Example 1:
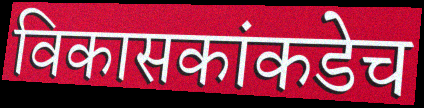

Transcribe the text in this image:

विकासकांकडेच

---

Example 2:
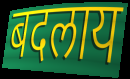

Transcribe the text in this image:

बदलाय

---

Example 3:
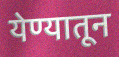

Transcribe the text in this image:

येण्यातून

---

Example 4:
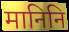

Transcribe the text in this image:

मानिनि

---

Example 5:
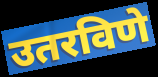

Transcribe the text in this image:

उतरविणे